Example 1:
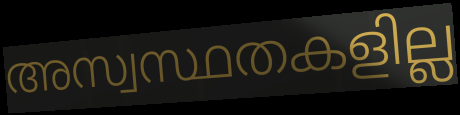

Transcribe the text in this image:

അസ്വസ്ഥതകളില്ല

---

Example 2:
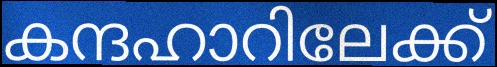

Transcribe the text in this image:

കന്ദഹാറിലേക്ക്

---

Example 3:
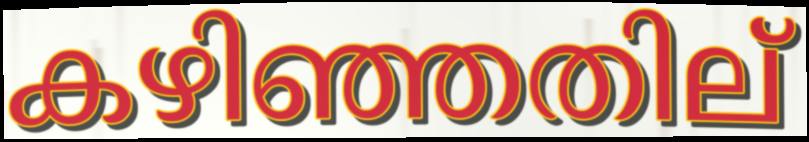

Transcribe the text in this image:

കഴിഞ്ഞതില്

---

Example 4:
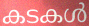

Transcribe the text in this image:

കടകൾ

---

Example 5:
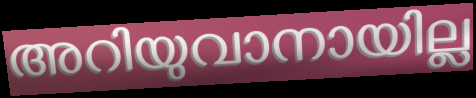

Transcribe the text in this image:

അറിയുവാനായില്ല